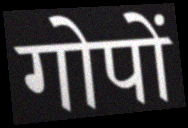
गोपों